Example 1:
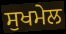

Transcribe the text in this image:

ਸੁਖਮੇਲ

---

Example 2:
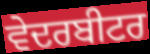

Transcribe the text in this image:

ਵੇਦਰਬੀਟਰ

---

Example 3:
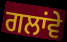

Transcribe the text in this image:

ਗਲਾਂਵੇ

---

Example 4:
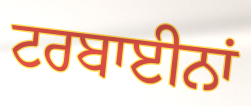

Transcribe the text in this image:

ਟਰਬਾਈਨਾਂ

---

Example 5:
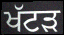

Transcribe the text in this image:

ਖੱਟੜ